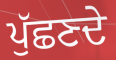
ਪੁੱਛਣਦੇ